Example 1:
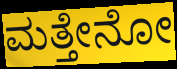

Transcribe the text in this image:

ಮತ್ತೇನೋ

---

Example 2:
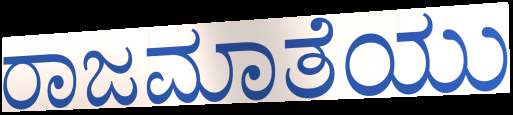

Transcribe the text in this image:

ರಾಜಮಾತೆಯು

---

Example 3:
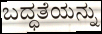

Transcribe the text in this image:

ಬದ್ಧತೆಯನ್ನು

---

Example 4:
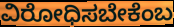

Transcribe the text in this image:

ವಿರೋಧಿಸಬೇಕೆಂಬ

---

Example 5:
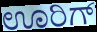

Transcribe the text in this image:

ಊರಿಗ್